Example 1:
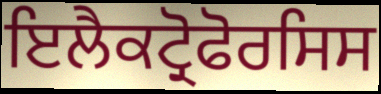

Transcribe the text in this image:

ਇਲੈਕਟ੍ਰੋਫੋਰਸਿਸ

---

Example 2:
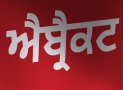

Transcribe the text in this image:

ਐਬ੍ਰੈਕਟ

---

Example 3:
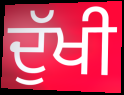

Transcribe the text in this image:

ਦੁੱਖੀ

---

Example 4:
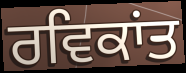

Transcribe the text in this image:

ਰਵਿਕਾਂਤ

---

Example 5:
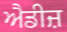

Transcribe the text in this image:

ਐਡੀਜ਼